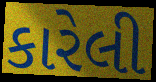
કારેલી